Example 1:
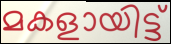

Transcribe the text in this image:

മകളായിട്ട്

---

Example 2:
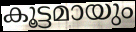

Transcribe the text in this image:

കൂട്ടമായും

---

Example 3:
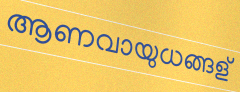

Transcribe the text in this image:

ആണവായുധങ്ങള്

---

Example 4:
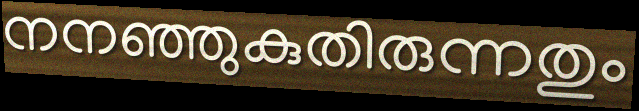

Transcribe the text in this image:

നനഞ്ഞുകുതിരുന്നതും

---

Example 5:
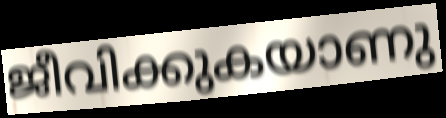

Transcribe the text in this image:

ജീവിക്കുകയാണു